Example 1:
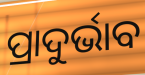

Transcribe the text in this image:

ପ୍ରାଦୁର୍ଭାବ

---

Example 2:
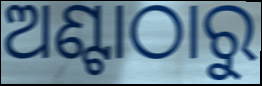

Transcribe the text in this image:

ଅଣ୍ଟାଠାରୁ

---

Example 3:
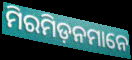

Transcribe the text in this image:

ମିରମିଡ଼ନମାନେ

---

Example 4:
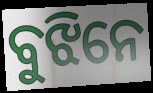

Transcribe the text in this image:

ବୁଝିନେ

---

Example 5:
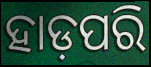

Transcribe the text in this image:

ହାଡ଼ପରି